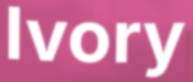
Ivory